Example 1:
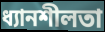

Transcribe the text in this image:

ধ্যানশীলতা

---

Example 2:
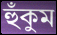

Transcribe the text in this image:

হুঁকুম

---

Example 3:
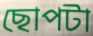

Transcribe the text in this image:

ছোপটা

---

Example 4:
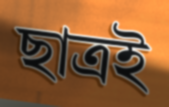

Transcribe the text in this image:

ছাত্রই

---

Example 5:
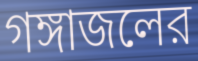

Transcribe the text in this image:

গঙ্গাজলের